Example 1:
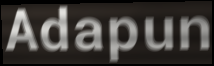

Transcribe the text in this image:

Adapun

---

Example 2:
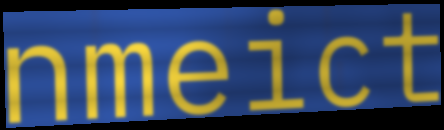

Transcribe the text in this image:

nmeict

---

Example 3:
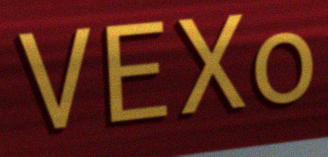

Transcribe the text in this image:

VEXo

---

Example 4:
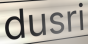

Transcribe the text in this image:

dusri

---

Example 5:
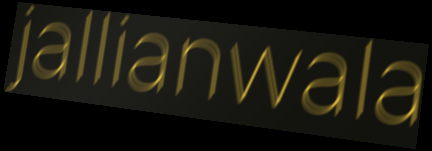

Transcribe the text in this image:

jallianwala